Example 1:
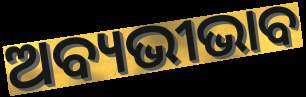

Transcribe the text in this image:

ଅବ୍ୟଭୀଭାବ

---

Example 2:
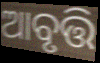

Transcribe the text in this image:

ଆବୃତ୍ତି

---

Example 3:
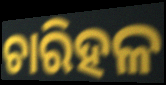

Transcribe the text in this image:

ଚାରିହଳ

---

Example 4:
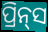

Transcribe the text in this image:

ପ୍ରିନ୍‍ସ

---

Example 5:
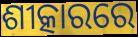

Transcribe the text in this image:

ଶୀତ୍କାରରେ